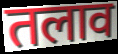
तलाव